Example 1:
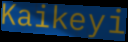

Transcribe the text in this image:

Kaikeyi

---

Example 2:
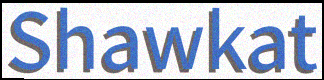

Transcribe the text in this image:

Shawkat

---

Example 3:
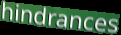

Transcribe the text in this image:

hindrances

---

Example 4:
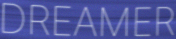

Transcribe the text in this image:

DREAMER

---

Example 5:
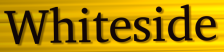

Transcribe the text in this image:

Whiteside